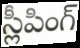
స్లీపింగ్